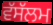
ਵੱਸੱਲਮ